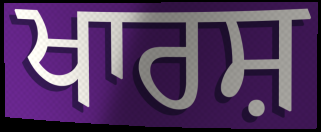
ਖਾਰਸ਼